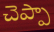
చెప్పా